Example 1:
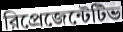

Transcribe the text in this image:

রিপ্রেজেন্টেটিভ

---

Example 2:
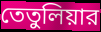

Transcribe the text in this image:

তেতুলিয়ার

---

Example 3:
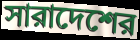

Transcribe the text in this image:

সারাদেশের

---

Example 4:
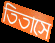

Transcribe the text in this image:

তিতাসে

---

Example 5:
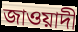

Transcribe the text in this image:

জাওয়াদী